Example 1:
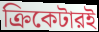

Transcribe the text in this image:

ক্রিকেটারই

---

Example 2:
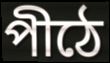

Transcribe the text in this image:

পীঠে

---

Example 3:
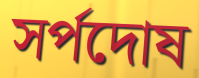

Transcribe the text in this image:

সর্পদোষ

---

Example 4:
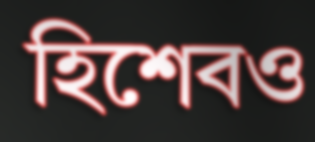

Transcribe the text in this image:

হিশেবও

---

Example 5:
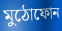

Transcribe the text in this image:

মুঠোফোন